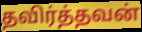
தவிர்த்தவன்